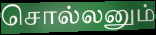
சொல்லனும்